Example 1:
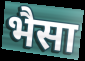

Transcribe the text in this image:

भैसा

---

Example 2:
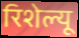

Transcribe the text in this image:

रिशेल्यू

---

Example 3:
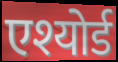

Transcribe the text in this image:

एश्योर्ड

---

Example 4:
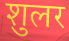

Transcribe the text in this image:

शुलर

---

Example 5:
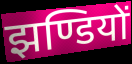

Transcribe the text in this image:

झण्डियों